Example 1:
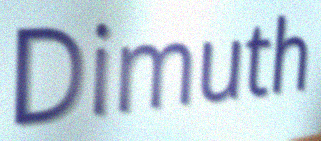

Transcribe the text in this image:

Dimuth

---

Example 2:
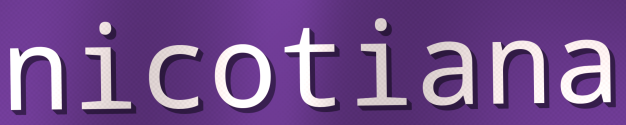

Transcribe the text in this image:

nicotiana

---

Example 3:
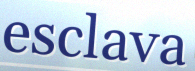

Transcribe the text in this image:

esclava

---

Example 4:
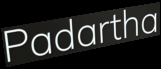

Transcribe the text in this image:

Padartha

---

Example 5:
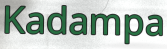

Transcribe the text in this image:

Kadampa